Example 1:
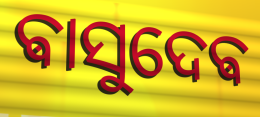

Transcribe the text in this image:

ଵାସୁଦେଵ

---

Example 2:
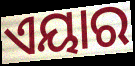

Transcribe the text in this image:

ଏୟାର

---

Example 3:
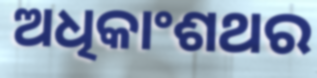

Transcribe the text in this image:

ଅଧିକାଂଶଥର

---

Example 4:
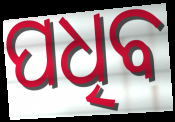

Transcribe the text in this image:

ପଧିବ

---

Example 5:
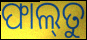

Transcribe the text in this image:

ଫାଲ୍‌ତୁ